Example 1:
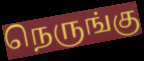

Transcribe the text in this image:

நெருங்கு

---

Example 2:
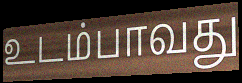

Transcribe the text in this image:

உடம்பாவது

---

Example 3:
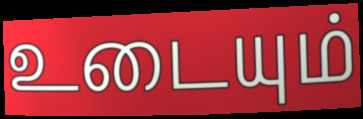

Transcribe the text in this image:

உடையும்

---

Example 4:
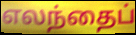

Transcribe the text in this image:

எலந்தைப்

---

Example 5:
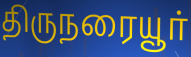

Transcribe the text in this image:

திருநரையூர்